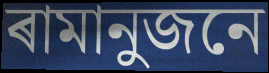
ৰামানুজনে